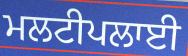
ਮਲਟੀਪਲਾਈ